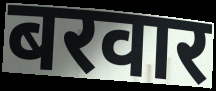
बरवार